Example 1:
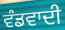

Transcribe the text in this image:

ਵੰਡਵਾਦੀ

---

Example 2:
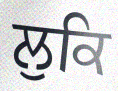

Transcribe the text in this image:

ਲੁਕਿ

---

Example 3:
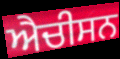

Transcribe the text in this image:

ਐਚੀਸਨ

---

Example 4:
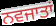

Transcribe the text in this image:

ਨਵਜਾਤਾਂ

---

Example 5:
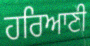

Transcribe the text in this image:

ਹਰਿਆਣੀ